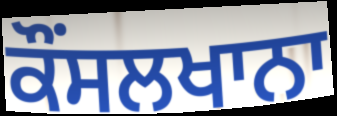
ਕੌਂਸਲਖਾਨਾ